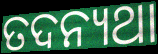
ତଦନ୍ୟଥା